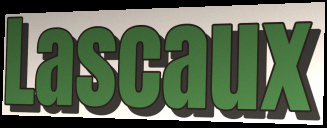
Lascaux